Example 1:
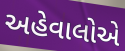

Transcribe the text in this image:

અહેવાલોએ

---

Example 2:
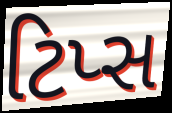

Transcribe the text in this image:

ટિપ્સ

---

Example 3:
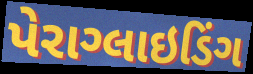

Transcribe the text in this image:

પેરાગ્લાઇડિંગ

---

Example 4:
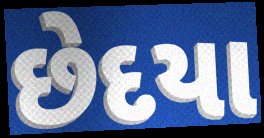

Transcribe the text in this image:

છેદયા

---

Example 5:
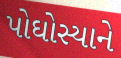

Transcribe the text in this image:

પોઘોસ્યાને